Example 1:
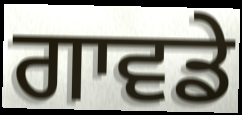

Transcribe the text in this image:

ਗਾਵਡੇ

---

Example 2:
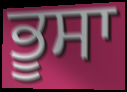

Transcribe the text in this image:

ਭੂਸਾ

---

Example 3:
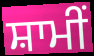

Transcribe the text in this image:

ਸ਼ਾਮੀਂ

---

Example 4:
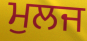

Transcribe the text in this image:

ਮੁਲਜ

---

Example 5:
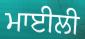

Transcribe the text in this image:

ਮਾਈਲੀ